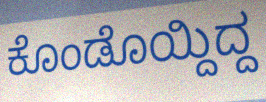
ಕೊಂಡೊಯ್ದಿದ್ದ